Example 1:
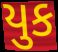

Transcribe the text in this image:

યુક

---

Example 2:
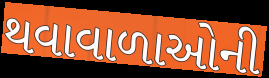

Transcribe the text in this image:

થવાવાળાઓની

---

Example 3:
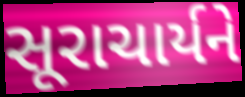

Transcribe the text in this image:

સૂરાચાર્યને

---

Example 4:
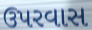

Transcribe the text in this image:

ઉપરવાસ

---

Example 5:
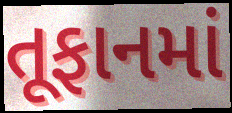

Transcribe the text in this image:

તૂફાનમાં